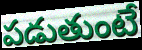
పడుతుంటే